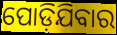
ପୋଡ଼ିଯିବାର